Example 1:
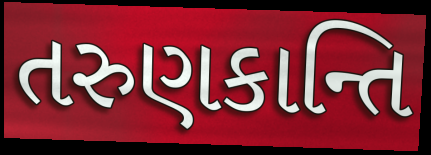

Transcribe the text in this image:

તરુણકાન્તિ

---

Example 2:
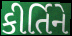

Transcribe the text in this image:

કીર્તિને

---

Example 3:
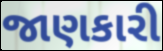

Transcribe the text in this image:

જાણકારી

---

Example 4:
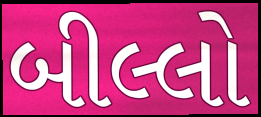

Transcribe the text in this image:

બીલ્લો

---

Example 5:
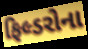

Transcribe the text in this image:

ફિલ્ડરોના